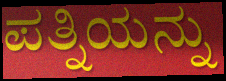
ಪತ್ನಿಯನ್ನು